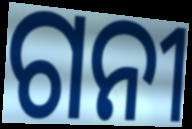
ଗନୀ